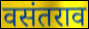
वसंतराव